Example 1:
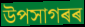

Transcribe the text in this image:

উপসাগৰৰ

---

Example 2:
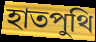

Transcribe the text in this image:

হাতপুথি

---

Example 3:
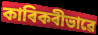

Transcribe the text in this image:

কাৰিকৰীভাৱে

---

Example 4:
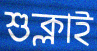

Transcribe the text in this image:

শুক্লাই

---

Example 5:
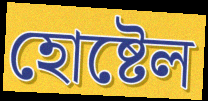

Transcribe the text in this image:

হোষ্টেল